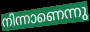
നിന്നാണെന്നു